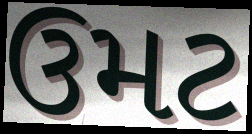
ઉમટ